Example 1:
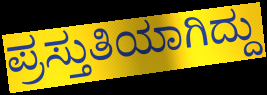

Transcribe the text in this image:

ಪ್ರಸ್ತುತಿಯಾಗಿದ್ದು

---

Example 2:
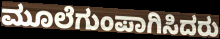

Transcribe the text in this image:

ಮೂಲೆಗುಂಪಾಗಿಸಿದರು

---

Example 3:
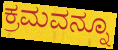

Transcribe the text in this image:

ಕ್ರಮವನ್ನೂ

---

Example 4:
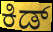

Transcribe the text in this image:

ಕಿಡ್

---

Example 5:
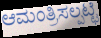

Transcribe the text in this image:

ಆಮಂತ್ರಿಸಲ್ಪಟ್ಟೆ